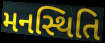
મનસ્થિતિ